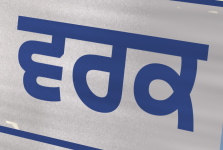
ਵਰਕ